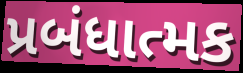
પ્રબંધાત્મક